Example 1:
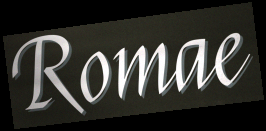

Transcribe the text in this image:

Romae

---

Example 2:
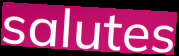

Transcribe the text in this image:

salutes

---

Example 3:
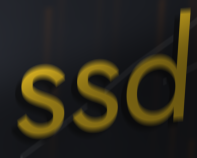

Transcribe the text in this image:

ssd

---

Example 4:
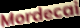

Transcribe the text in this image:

Mordecai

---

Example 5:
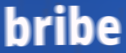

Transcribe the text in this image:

bribe